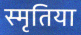
स्मृतिया